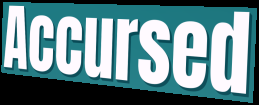
Accursed